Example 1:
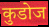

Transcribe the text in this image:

कुडोज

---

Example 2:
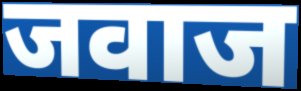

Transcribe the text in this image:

जवाज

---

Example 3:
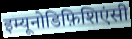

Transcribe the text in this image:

इम्यूनोडिफ़िशिएंसी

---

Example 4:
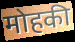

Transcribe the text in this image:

मोहकी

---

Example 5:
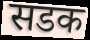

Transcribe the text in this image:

सडक